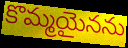
కొమ్మయైనను